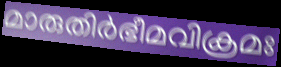
മാരുതിർഭീമവിക്രമഃ